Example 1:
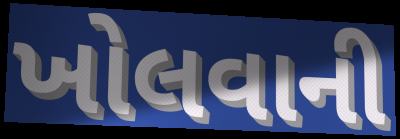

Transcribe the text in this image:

ખોલવાની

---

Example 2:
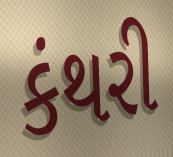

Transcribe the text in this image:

કંથરી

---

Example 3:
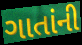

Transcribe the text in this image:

ગાતાંની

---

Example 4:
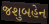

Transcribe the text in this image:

જશુબહેન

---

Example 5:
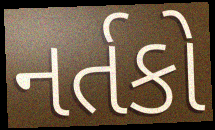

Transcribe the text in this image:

નર્તકો